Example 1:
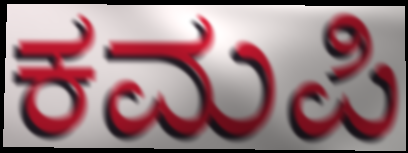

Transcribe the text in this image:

ಕಮಪಿ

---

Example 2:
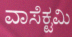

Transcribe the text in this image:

ವಾಸೆಕ್ಟಮಿ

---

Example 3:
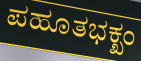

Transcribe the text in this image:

ಪಹೂತಭಕ್ಖಂ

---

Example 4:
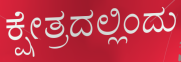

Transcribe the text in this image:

ಕ್ಷೇತ್ರದಲ್ಲಿಂದು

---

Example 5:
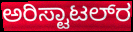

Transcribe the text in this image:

ಅರಿಸ್ಟಾಟಲ್‍ರ